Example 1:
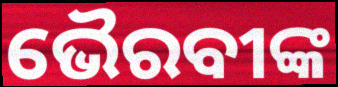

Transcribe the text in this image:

ଭୈରବୀଙ୍କ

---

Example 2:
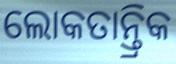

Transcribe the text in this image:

ଲୋକତାନ୍ତ୍ରିକ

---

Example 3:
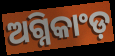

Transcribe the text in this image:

ଅଗ୍ନିକାଂଡ଼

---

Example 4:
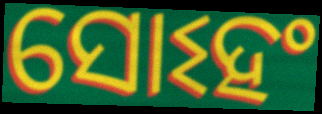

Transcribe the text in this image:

ସୋଽହଂ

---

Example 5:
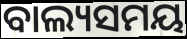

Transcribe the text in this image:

ବାଲ୍ୟସମୟ